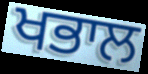
ਖਭਾਲ